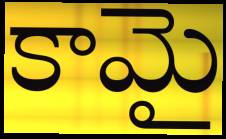
కామై